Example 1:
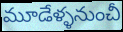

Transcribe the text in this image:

మూడేళ్ళనుంచీ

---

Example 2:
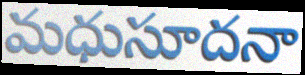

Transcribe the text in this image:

మధుసూదనా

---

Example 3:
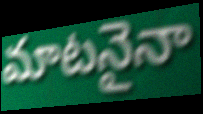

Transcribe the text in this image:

మాటనైనా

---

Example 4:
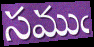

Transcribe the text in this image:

సముఁ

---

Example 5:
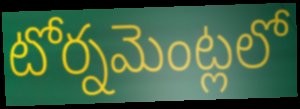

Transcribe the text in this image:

టోర్నమెంట్లలో